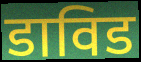
डाविड